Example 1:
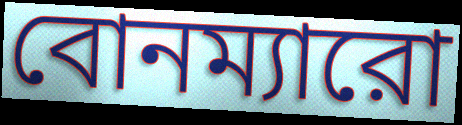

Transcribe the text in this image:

বোনম্যারো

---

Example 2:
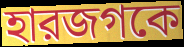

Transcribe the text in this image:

হারজগকে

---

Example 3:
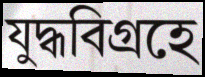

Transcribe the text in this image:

যুদ্ধবিগ্রহে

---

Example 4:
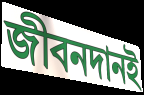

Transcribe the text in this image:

জীবনদানই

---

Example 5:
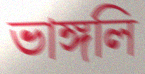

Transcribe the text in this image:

ভাঙ্গলি